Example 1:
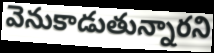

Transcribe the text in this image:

వెనుకాడుతున్నారని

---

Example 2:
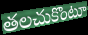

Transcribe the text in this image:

తలచుకొంటూ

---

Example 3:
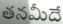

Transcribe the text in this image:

తనమీదే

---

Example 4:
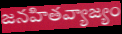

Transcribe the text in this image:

జనహితవ్యాజ్యం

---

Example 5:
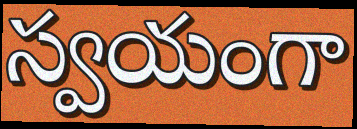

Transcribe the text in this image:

స్వయంగా